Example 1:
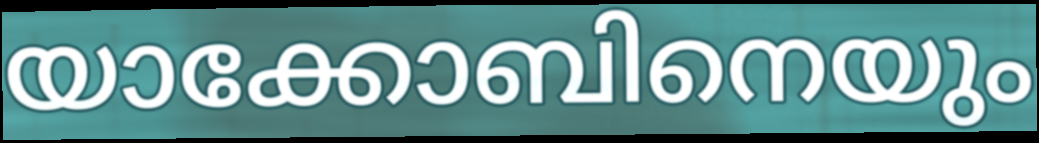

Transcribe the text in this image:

യാക്കോബിനെയും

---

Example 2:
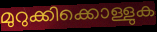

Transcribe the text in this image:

മുറുക്കിക്കൊള്ളുക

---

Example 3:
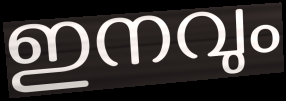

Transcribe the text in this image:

ഇനവും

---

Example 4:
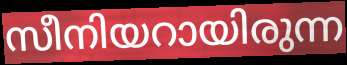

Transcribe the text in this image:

സീനിയറായിരുന്ന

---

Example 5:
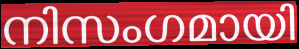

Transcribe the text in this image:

നിസംഗമായി